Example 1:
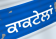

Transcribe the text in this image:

ਕਾਕਟੇਲਾਂ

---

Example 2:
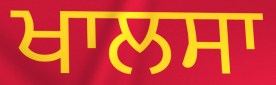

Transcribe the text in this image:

ਖਾਲਸਾ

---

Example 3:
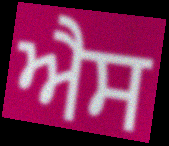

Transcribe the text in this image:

ਐਸ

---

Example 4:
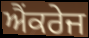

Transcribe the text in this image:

ਐਂਕਰੇਜ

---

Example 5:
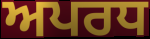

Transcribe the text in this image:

ਅਪਰਧ